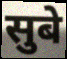
सुबे